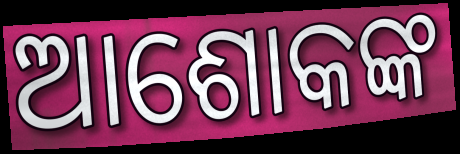
ଆଶୋକଙ୍କ